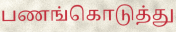
பணங்கொடுத்து